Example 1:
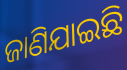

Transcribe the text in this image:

ଜାଣିଯାଇଛି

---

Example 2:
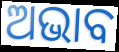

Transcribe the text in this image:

ଅଭାବ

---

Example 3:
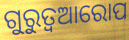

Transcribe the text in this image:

ଗୁରୁତ୍ଵଆରୋପ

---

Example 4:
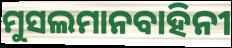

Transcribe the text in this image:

ମୁସଲମାନବାହିନୀ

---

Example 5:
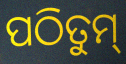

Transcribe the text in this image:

ପଠିତୁମ୍